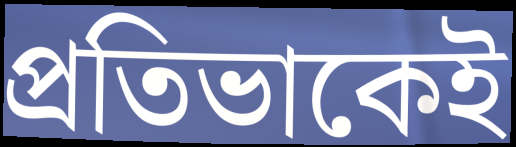
প্রতিভাকেই